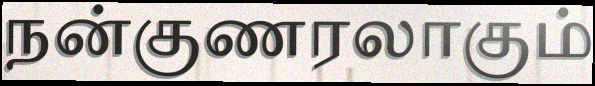
நன்குணரலாகும்